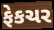
ફેકચર